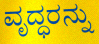
ವೃದ್ಧರನ್ನು